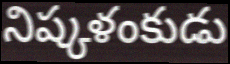
నిష్కళంకుడు